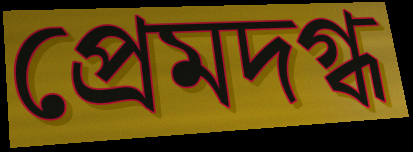
প্রেমদগ্ধ